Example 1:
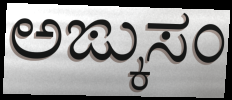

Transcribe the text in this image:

ಅಙ್ಕುಸಂ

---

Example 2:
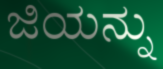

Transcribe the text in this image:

ಜಿಯನ್ನು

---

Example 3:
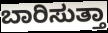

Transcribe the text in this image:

ಬಾರಿಸುತ್ತಾ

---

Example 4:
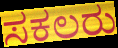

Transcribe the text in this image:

ಸಕಲರು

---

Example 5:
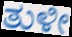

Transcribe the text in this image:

ತುಳೀ